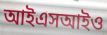
আইএসআইও